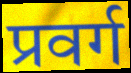
प्रवर्ग